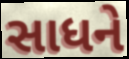
સાધને